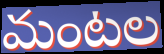
మంటల